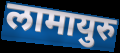
लामायुरु